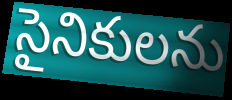
సైనికులను